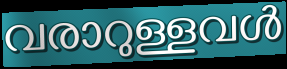
വരാറുള്ളവൾ